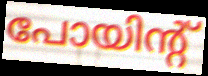
പോയിന്റ്